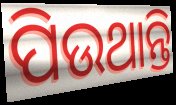
ପିଉଥାନ୍ତି